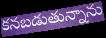
కనబడుతున్నాను